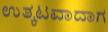
ಉತ್ಕಟವಾದಾಗ